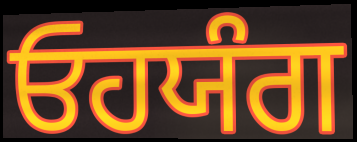
ਓਹਯੰਗ